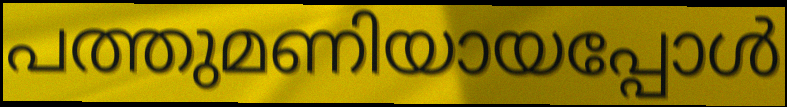
പത്തുമണിയായപ്പോൾ